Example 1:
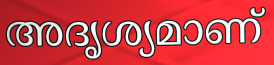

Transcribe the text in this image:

അദൃശ്യമാണ്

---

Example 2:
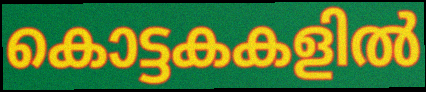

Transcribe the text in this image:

കൊട്ടകകളിൽ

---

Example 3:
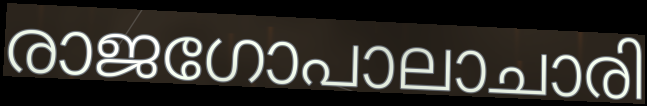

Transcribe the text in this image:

രാജഗോപാലാചാരി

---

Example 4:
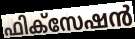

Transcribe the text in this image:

ഫിക്സേഷൻ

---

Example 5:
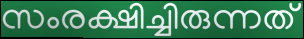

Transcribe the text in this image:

സംരക്ഷിച്ചിരുന്നത്